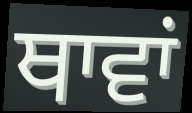
ਥਾਵਾਂ